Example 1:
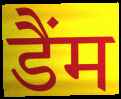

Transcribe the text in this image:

डैंम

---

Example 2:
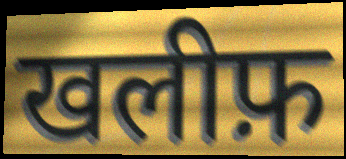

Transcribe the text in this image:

खलीफ़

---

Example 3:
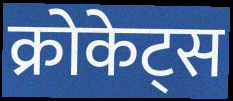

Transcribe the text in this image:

क्रोकेट्स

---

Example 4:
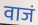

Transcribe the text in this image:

वाजं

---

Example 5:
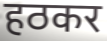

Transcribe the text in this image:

हठकर